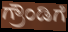
ಗ್ರೌಂಡಿಗೆ